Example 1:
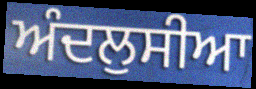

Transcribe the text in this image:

ਅੰਦਲੁਸੀਆ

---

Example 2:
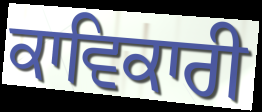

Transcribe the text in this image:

ਕਾਵਿਕਾਰੀ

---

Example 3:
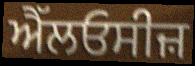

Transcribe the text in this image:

ਐੱਲਓਸੀਜ਼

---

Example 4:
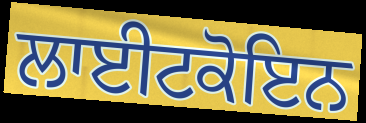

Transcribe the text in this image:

ਲਾਈਟਕੋਇਨ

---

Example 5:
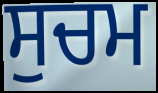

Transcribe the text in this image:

ਸੁਚਮ